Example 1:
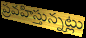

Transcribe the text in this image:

ప్రవహిస్తున్నట్లు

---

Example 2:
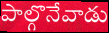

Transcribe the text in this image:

పాల్గొనేవాడు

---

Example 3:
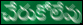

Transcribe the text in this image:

చేరుకోలేవు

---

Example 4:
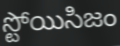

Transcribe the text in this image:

స్టోయిసిజం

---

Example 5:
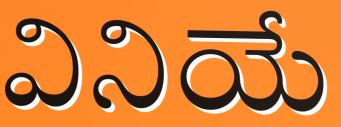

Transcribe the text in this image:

వినియే